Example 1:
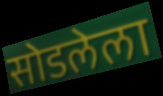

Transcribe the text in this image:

सोडलेला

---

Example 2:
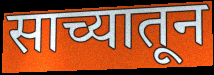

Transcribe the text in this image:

साच्यातून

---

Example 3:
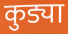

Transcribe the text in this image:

कुड्या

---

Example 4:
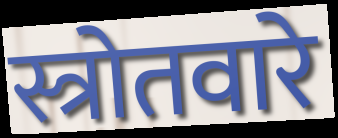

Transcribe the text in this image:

स्त्रोतवारे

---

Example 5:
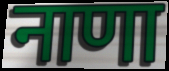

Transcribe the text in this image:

नाणा